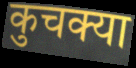
कुचक्या